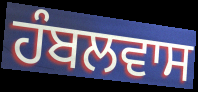
ਹੰਬਲਵਾਸ